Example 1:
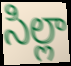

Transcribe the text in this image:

సిల్లా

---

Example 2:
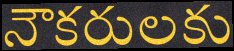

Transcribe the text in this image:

నౌకరులకు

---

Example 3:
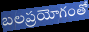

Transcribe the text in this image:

బలప్రయోగంతో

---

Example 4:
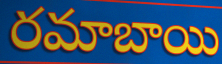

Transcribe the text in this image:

రమాబాయి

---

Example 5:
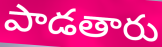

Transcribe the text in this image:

పాడతారు